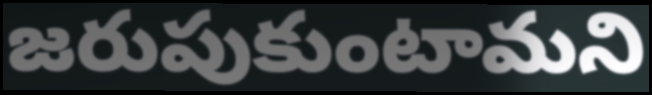
జరుపుకుంటామని